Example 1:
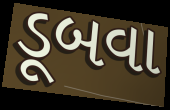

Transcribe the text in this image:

ડૂબવા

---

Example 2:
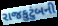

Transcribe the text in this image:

રાજકુટુંબની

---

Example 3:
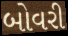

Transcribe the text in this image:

બોવરી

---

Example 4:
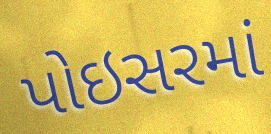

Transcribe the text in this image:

પોઇસરમાં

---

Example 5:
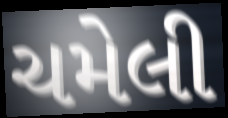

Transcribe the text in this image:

ચમેલી